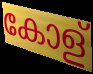
കോള്